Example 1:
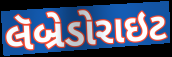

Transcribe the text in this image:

લૅબ્રેડોરાઇટ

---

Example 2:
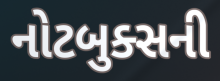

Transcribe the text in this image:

નોટબુક્સની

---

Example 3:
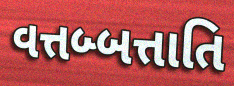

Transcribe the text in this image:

વત્તબ્બત્તાતિ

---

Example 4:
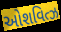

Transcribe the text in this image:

ઓશવિત્ઝ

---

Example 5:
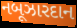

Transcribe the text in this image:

નબૂઝારદાન